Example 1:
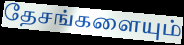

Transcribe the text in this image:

தேசங்களையும்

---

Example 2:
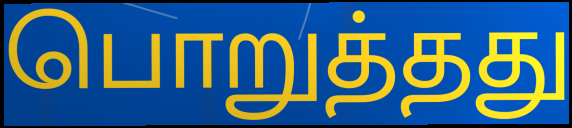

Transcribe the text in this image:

பொறுத்தது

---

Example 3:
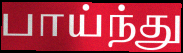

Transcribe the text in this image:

பாய்ந்து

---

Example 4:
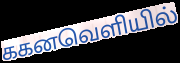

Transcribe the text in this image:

ககனவெளியில்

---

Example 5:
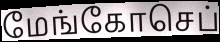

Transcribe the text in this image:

மேங்கோசெப்